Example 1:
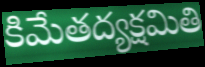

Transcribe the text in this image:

కిమేతద్యక్షమితి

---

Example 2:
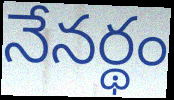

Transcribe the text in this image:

నేనర్థం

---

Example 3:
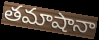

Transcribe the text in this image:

తమాషానా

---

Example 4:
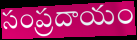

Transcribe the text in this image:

సంప్రదాయం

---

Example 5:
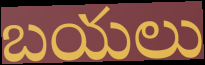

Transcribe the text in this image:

బయలు